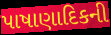
પાષાણાદિકની